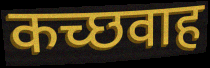
कच्छवाह